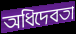
অধিদেবতা